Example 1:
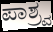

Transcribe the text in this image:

ಪಾಶ್ರ್ವ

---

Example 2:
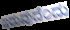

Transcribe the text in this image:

ಇರುವುದೆಂದು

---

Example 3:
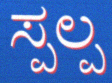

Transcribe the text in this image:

ಸ್ಪಲ್ಪ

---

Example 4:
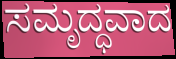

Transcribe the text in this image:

ಸಮೃದ್ಧವಾದ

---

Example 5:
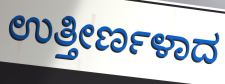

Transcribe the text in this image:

ಉತ್ತೀರ್ಣಳಾದ